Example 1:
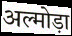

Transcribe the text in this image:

अल्मोड़ा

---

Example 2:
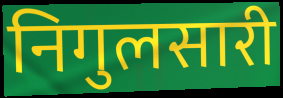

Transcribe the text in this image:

निगुलसारी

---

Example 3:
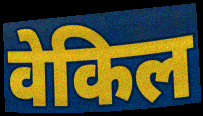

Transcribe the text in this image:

वेकिल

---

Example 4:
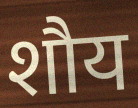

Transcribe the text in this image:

शौय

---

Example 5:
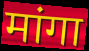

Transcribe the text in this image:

मांगा